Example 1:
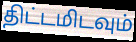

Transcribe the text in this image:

திட்டமிடவும்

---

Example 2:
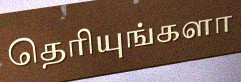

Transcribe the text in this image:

தெரியுங்களா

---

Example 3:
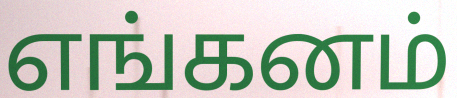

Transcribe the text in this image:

எங்கனம்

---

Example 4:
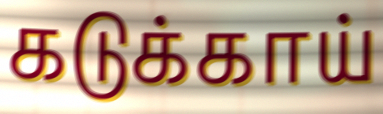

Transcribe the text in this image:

கடுக்காய்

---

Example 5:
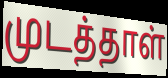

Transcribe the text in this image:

முடத்தாள்